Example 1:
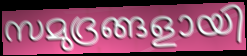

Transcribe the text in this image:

സമുദ്രങ്ങളായി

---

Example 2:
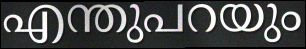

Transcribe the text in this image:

എന്തുപറയും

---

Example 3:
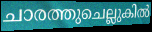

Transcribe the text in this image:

ചാരത്തുചെല്ലുകിൽ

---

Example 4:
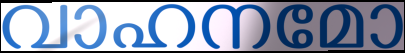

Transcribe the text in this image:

വാഹനമോ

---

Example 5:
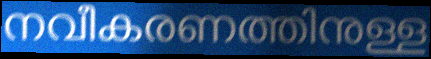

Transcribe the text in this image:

നവീകരണത്തിനുള്ള